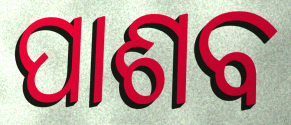
ପାଶବ